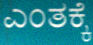
ಎಂತಕ್ಕೆ